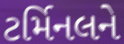
ટર્મિનલને